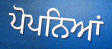
ਪੋਪਨਿਆਂ